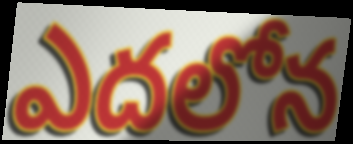
ఎదలోన